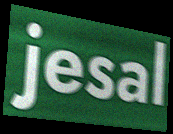
jesal